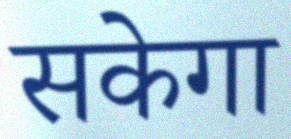
सकेगा